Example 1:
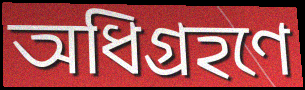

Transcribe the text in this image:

অধিগ্রহণে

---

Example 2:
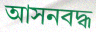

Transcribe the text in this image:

আসনবদ্ধ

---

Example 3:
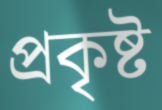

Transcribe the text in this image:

প্রকৃষ্ট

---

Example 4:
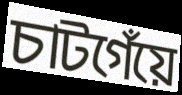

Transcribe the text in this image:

চাটগেঁয়ে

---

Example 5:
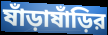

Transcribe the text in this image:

ষাঁড়াষাঁড়ির